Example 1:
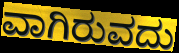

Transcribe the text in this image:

ವಾಗಿರುವದು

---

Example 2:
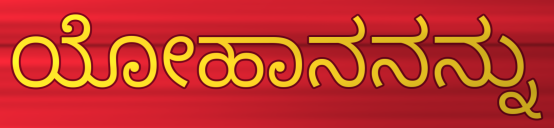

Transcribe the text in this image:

ಯೋಹಾನನನ್ನು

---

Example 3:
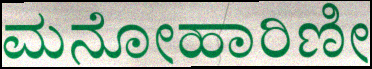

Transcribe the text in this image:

ಮನೋಹಾರಿಣೀ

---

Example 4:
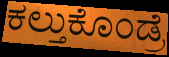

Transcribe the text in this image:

ಕಲ್ತುಕೊಂಡ್ರೆ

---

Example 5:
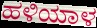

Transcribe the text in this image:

ಹಳಿಯಾಳ